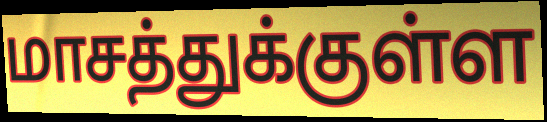
மாசத்துக்குள்ள